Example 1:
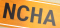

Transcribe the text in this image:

NCHA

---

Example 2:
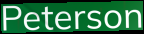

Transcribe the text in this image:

Peterson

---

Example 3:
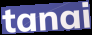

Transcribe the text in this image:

tanai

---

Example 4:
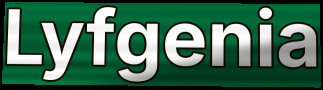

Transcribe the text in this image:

Lyfgenia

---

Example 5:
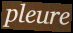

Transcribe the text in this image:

pleure